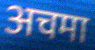
अचमा